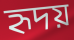
হৃদয়